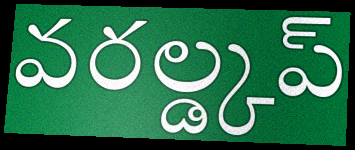
వరల్డ్కప్